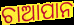
ଚାଆପାନ